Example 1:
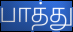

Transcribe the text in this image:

பாத்து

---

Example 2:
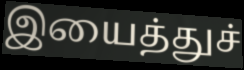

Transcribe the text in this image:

இயைத்துச்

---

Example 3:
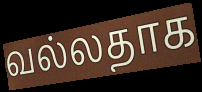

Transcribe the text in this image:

வல்லதாக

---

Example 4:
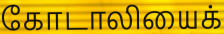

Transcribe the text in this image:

கோடாலியைக்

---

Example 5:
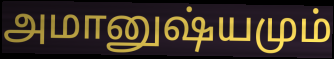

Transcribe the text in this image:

அமானுஷ்யமும்